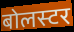
बोलस्टर